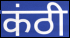
कंठी